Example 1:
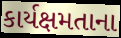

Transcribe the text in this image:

કાર્યક્ષમતાના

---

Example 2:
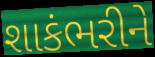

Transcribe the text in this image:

શાકંભરીને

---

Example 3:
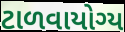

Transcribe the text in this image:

ટાળવાયોગ્ય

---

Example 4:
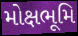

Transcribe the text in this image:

મોક્ષભૂમિ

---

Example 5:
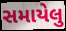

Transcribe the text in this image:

સમાયેલુ